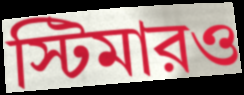
স্টিমারও